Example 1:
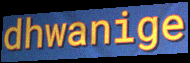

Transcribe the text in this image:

dhwanige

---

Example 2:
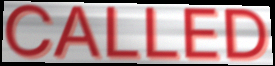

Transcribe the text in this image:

CALLED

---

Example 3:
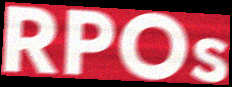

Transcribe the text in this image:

RPOs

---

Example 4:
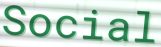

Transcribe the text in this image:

Social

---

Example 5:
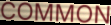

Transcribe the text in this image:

COMMON